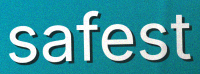
safest